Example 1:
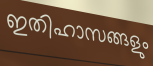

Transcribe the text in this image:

ഇതിഹാസങ്ങളും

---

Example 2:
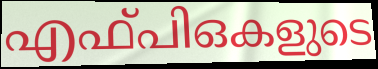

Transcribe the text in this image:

എഫ്പിഒകളുടെ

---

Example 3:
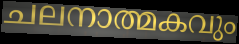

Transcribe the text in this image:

ചലനാത്മകവും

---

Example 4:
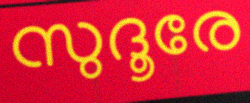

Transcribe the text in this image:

സുദൂരേ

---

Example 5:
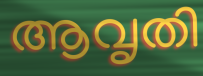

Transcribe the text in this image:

ആവൃതി